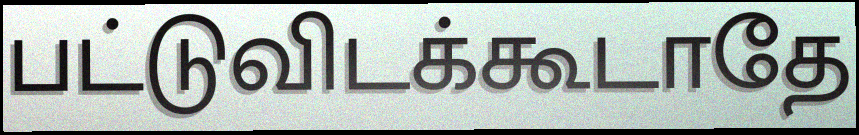
பட்டுவிடக்கூடாதே